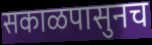
सकाळपासुनच